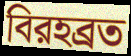
বিরহব্রত